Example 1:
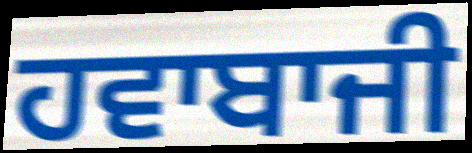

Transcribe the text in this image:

ਹਵਾਬਾਜੀ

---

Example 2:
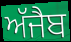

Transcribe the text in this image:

ਅੱਜੈਬ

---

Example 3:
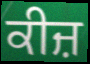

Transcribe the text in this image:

ਕੀਜ਼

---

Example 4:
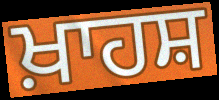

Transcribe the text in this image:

ਖ਼ਾਹਸ਼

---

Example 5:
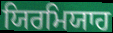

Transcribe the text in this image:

ਯਿਰਮਿਯਾਹ